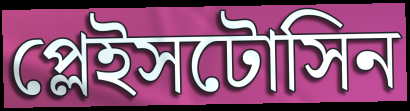
প্লেইসটোসিন